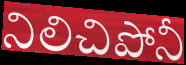
నిలిచిపోనీ